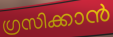
ഗ്രസിക്കാൻ